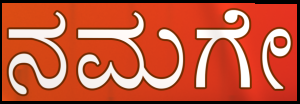
ನಮಗೇ